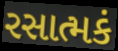
રસાત્મકં